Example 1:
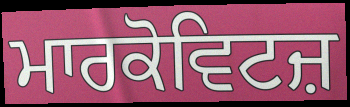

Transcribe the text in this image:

ਮਾਰਕੋਵਿਟਜ਼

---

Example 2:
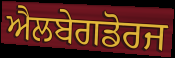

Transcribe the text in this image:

ਐਲਬੇਗਡੋਰਜ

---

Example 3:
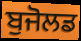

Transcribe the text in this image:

ਬੁਜੋਲਡ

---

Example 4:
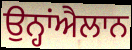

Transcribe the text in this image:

ਉਨ੍ਹਾਂਐਲਾਨ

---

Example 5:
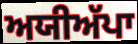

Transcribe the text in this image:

ਅਯੀਅੱਪਾ